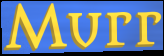
Murr